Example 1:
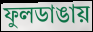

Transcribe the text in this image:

ফুলডাঙায়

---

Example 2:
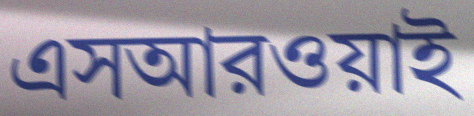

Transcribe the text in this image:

এসআরওয়াই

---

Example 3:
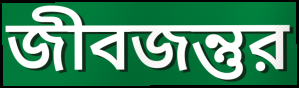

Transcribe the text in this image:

জীবজন্তুর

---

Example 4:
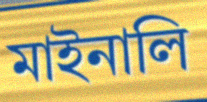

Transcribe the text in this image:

মাইনালি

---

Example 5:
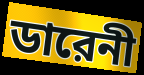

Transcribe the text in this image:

ডারেনী